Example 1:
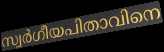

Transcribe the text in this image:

സ്വർഗീയപിതാവിനെ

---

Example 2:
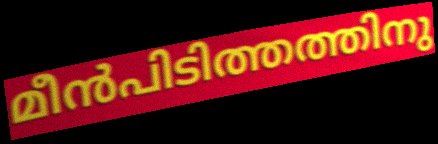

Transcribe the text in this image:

മീൻപിടിത്തത്തിനു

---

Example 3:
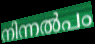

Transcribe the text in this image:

നിന്നൽപം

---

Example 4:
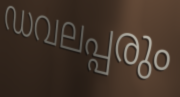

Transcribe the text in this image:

ഡവലപ്പരും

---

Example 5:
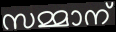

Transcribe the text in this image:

സമ്മാന്